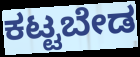
ಕಟ್ಟಬೇಡ